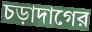
চড়াদাগের